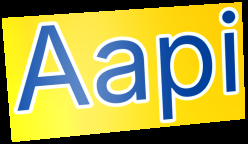
Aapi